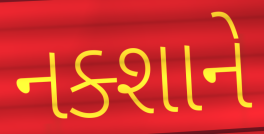
નક્શાને